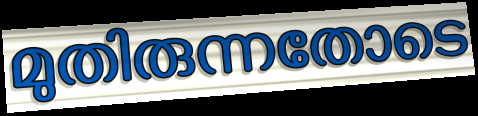
മുതിരുന്നതോടെ